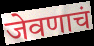
जेवणाचं